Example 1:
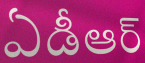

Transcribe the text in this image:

ఏడీఆర్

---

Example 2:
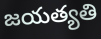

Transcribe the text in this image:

జయత్యతి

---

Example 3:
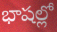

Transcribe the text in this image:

భాషల్లో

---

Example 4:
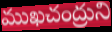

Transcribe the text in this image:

ముఖచంద్రుని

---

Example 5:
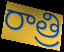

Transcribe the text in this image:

రాత్రి